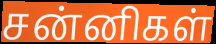
சன்னிகள்